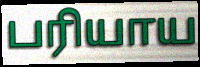
பரியாய